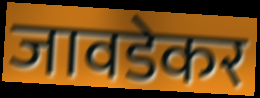
जावडेकर